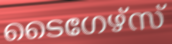
ടൈഗേഴ്സ്